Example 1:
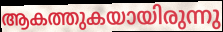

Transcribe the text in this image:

ആകത്തുകയായിരുന്നു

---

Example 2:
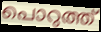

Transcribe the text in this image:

പൊറുത്ത്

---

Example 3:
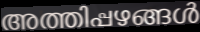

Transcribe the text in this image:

അത്തിപ്പഴങ്ങൾ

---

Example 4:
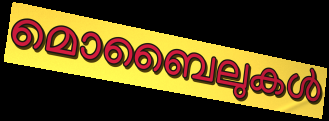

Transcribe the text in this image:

മൊബൈലുകൾ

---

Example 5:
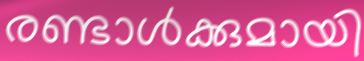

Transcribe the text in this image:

രണ്ടാൾക്കുമായി